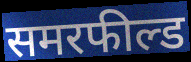
समरफील्ड